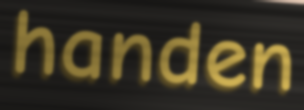
handen